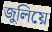
জুলিয়ে